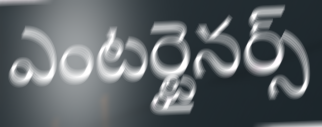
ఎంటర్టైనర్స్